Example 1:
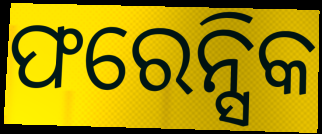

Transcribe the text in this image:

ଫରେନ୍ସିକ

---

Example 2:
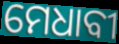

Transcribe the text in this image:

ମେଧାବୀ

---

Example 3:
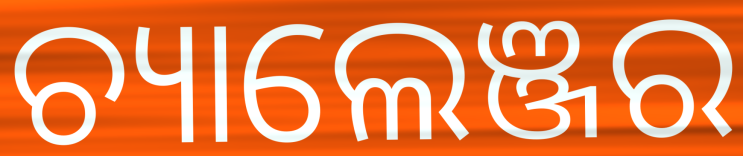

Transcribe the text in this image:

ଚ୍ୟାଲେଞ୍ଜର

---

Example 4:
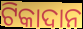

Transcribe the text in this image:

ଟିକାଦାନ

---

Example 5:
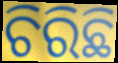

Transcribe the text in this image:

ଚିରିଛି